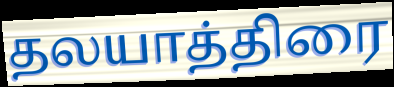
தலயாத்திரை